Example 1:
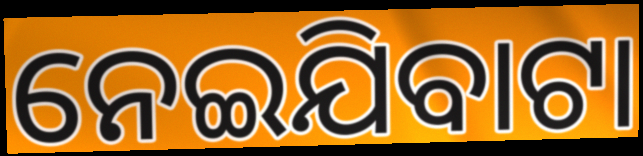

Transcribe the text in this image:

ନେଇଯିବାଟା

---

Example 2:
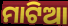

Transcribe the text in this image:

ମାଟିଆ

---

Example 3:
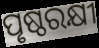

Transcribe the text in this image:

ପୃଷ୍ଠରକ୍ଷୀ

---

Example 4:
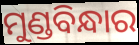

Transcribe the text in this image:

ମୁଣ୍ଡବିନ୍ଧାର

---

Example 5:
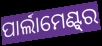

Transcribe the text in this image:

ପାର୍ଲାମେଣ୍ଟ୍‌ର